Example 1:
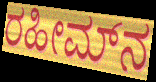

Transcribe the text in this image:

ರಹೀಮ್‌ನ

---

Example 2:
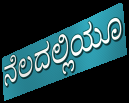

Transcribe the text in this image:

ನೆಲದಲ್ಲಿಯೂ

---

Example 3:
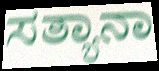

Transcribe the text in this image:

ಸತ್ಯಾನಾ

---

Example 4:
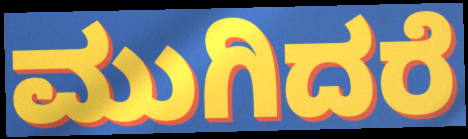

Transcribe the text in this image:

ಮುಗಿದರೆ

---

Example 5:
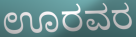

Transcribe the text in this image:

ಊರವರ